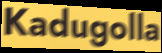
Kadugolla